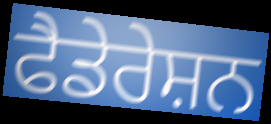
ਫੈਡੇਰੇਸ਼ਨ